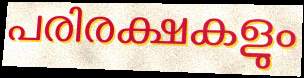
പരിരക്ഷകളും